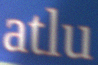
atlu